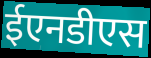
ईएनडीएस